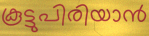
കൂട്ടുപിരിയാൻ